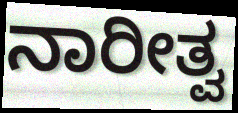
ನಾರೀತ್ವ